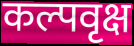
कल्‍पवृक्ष